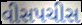
વીસપચીસ